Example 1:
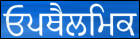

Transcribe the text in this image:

ਓਪਥੈਲਮਿਕ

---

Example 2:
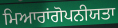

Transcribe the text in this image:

ਮਿਆਰਾਂਗੋਪਨੀਯਤਾ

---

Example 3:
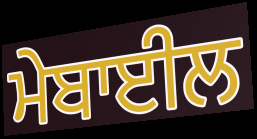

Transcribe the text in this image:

ਮੇਬਾਈਲ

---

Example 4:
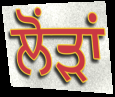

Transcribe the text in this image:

ਲੋਂੜਾਂ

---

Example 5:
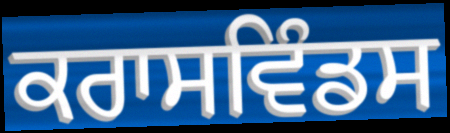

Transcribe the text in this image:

ਕਰਾਸਵਿੰਡਸ